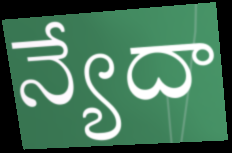
న్యేదా